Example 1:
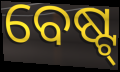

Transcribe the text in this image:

ବେଷ୍ଟ୍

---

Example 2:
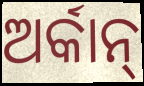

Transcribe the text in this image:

ଅର୍କାନ୍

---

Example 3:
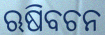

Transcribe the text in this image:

ଋଷିବଚନ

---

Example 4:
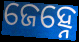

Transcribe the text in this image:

ଜେହ୍ନେ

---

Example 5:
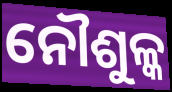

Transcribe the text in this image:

ନୌଶୁଳ୍କ